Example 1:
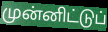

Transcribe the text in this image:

முன்னிட்டுப்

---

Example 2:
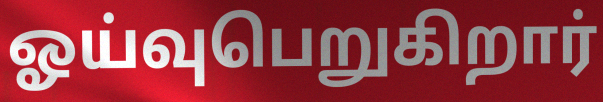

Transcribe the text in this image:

ஓய்வுபெறுகிறார்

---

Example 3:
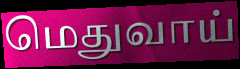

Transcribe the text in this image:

மெதுவாய்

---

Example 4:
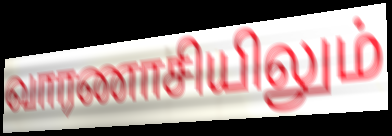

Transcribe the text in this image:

வாரணாசியிலும்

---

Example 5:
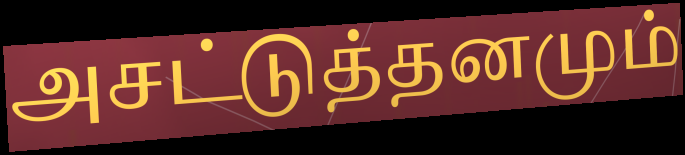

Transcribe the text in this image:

அசட்டுத்தனமும்